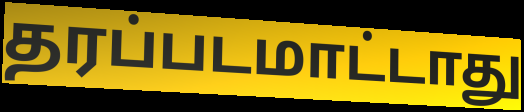
தரப்படமாட்டாது